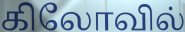
கிலோவில்